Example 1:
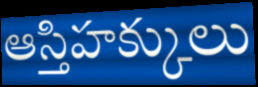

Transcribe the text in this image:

ఆస్తిహక్కులు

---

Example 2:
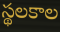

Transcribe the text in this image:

స్థలకాల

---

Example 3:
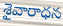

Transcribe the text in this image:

శైవారాధన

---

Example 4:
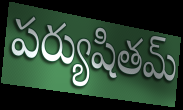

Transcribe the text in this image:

పర్యుషితమ్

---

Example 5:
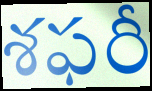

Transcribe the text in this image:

శఫరీ